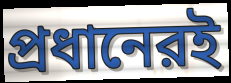
প্রধানেরই